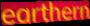
earthern